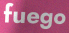
fuego